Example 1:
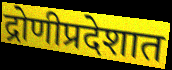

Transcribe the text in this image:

द्रोणीप्रदेशात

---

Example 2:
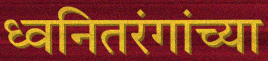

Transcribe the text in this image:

ध्वनितरंगांच्या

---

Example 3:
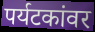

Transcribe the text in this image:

पर्यटकांवर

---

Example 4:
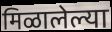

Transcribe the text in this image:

मिळालेल्या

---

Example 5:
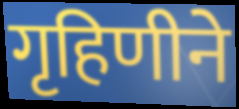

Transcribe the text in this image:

गृहिणीने